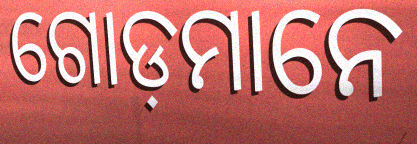
ଗୋଡ଼ମାନେ